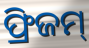
ଫ୍ରିଜମ୍